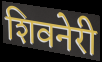
शिवनेरी